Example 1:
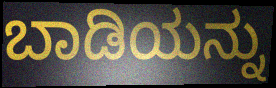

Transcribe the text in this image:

ಬಾಡಿಯನ್ನು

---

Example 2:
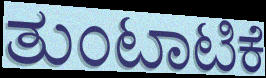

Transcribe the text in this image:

ತುಂಟಾಟಿಕೆ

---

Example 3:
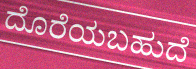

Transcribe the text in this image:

ದೊರೆಯಬಹುದೆ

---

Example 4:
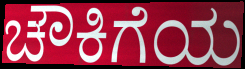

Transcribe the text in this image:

ಚೌಕಿಗೆಯ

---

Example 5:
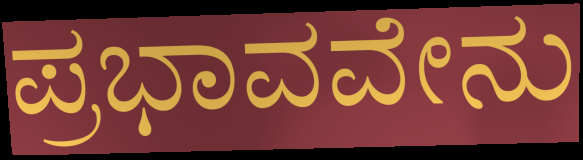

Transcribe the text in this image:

ಪ್ರಭಾವವೇನು